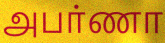
அபர்ணா